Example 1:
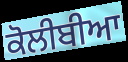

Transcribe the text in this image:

ਕੋਲੀਬੀਆ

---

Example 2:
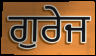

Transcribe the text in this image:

ਗੁਰੇਜ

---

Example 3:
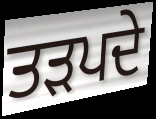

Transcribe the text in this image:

ਤੜਪਦੇ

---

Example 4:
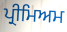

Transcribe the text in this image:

ਪ੍ਰੀਮਿਅਮ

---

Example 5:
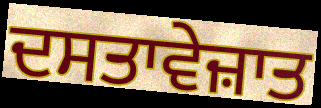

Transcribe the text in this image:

ਦਸਤਾਵੇਜ਼ਾਤ